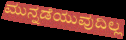
ಮುನ್ನಡೆಯುವುದಿಲ್ಲ